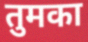
तुमका